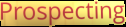
Prospecting